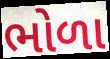
ભોળા